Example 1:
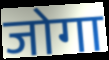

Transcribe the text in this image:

जोगा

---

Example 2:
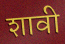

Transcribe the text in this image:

शावी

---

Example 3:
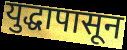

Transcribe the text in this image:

युद्धापासून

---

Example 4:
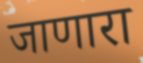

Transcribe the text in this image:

जाणारा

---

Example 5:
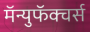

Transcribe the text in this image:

मॅन्युफॅक्चर्स